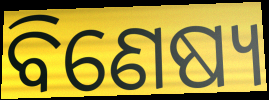
ବିଣେଷ୍ୟ